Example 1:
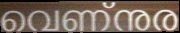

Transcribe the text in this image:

വെണ്നുര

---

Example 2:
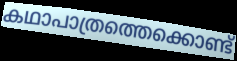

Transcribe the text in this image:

കഥാപാത്രത്തെക്കൊണ്ട്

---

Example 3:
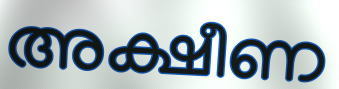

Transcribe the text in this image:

അക്ഷീണ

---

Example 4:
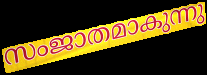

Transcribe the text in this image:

സംജാതമാകുന്നു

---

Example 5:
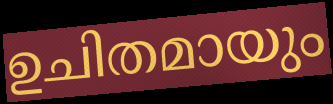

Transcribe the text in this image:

ഉചിതമായും